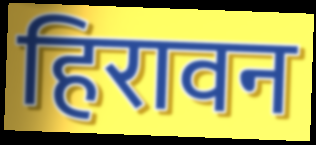
हिरावन